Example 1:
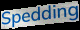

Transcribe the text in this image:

Spedding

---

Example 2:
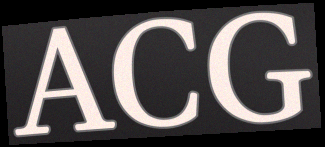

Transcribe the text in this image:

ACG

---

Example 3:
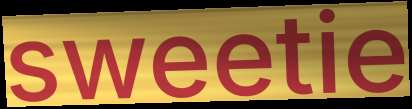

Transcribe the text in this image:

sweetie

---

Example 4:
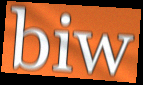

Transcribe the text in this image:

biw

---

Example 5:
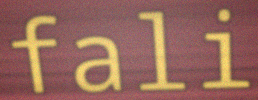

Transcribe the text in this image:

fali